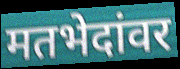
मतभेदांवर